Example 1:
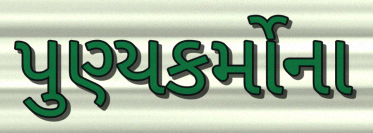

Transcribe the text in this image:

પુણ્યકર્મોના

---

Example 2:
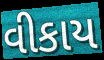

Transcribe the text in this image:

વીકાય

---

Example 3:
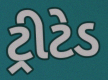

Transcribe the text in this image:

ટ્રીટેડ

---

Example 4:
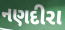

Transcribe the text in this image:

નણદીરા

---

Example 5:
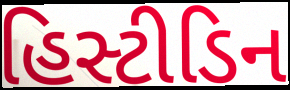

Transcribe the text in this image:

હિસ્ટીડિન